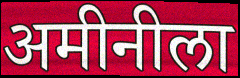
अमीनीला